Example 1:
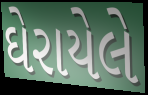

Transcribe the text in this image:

ઘેરાયેલે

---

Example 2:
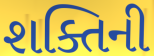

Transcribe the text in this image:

શક્તિની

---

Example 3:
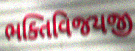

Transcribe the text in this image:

ભક્તિવિજયજી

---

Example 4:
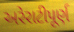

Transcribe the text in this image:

અરેરાટીપૂર્ણ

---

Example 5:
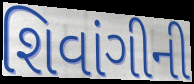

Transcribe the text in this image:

શિવાંગીની